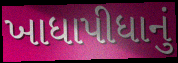
ખાધાપીધાનું